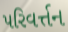
પરિવર્ત્તન